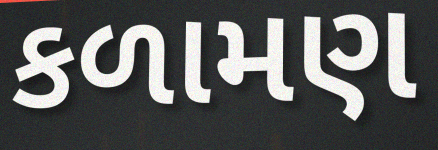
કળામણ